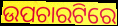
ଉପଚାରଟିରେ